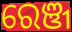
ରେଞ୍ଜ